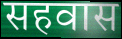
सहवास